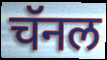
चॅनल